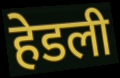
हेडली